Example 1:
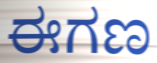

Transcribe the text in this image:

ಈಗಣ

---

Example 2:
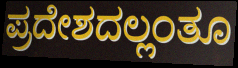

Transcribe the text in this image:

ಪ್ರದೇಶದಲ್ಲಂತೂ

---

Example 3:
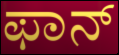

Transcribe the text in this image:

ಫಾನ್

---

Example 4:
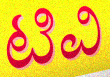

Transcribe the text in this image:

ಟಿವಿ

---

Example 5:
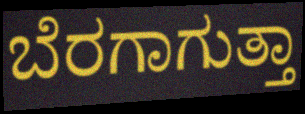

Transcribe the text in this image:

ಬೆರಗಾಗುತ್ತಾ